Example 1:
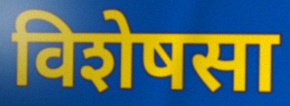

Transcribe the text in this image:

विशेषसा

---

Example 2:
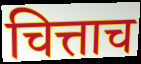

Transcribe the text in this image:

चित्ताच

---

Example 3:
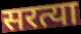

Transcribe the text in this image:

सरत्या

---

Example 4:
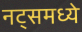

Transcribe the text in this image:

नट्समध्ये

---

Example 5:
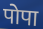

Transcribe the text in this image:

पोपा